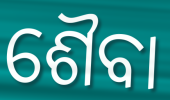
ଶୈବା